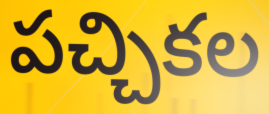
పచ్చికల